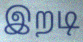
இறடி